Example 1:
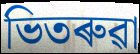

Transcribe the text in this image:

ভিতৰুৱা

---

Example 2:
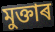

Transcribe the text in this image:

মুক্তাৰ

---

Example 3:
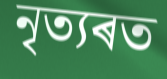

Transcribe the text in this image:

নৃত্যৰত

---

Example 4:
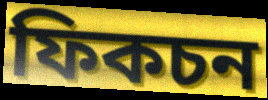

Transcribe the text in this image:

ফিকচন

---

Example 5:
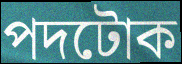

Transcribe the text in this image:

পদটোক